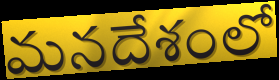
మనదేశంలో